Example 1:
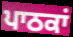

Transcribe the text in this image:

ਪਾਠਕਾਂ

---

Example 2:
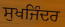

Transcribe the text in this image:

ਸੁਖਜਿੰਦਰ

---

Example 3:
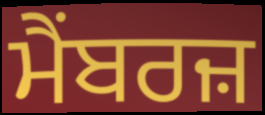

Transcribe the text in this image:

ਮੈਂਬਰਜ਼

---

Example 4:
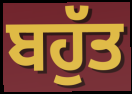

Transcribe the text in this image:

ਬਹੁੱਤ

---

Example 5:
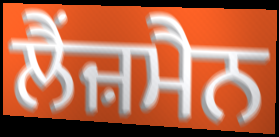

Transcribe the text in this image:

ਲੈਂਜ਼ਮੈਨ